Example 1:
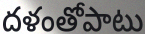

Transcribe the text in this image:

దళంతోపాటు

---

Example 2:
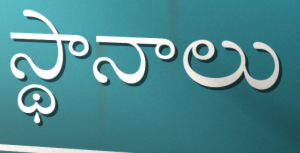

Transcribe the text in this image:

స్థానాలు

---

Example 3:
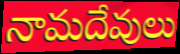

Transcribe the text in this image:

నామదేవులు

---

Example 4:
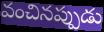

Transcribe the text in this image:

వంచినప్పుడు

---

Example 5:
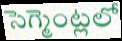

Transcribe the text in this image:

సెగ్మెంట్లలో